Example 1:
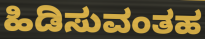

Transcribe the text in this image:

ಹಿಡಿಸುವಂತಹ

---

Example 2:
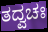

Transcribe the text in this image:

ತದ್ವಚಃ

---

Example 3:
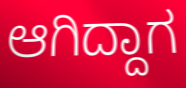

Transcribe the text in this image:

ಆಗಿದ್ದಾಗ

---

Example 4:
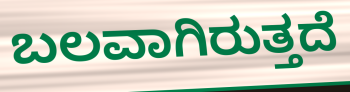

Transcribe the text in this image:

ಬಲವಾಗಿರುತ್ತದೆ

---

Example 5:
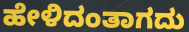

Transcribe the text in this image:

ಹೇಳಿದಂತಾಗದು